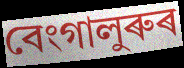
বেংগালুৰুৰ